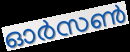
ഓർസൺ